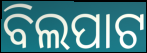
ବିଲପାଟ